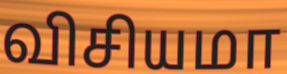
விசியமா